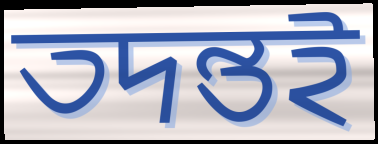
তদন্তই